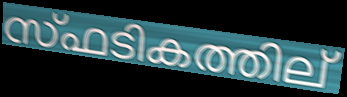
സ്ഫടികത്തില്